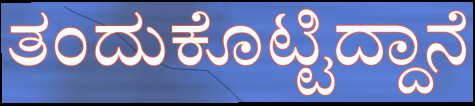
ತಂದುಕೊಟ್ಟಿದ್ದಾನೆ